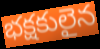
భక్షకులైన